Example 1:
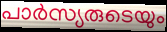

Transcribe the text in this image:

പാർസ്യരുടെയും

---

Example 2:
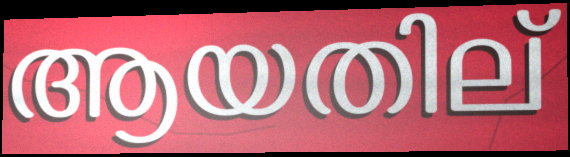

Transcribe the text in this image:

ആയതില്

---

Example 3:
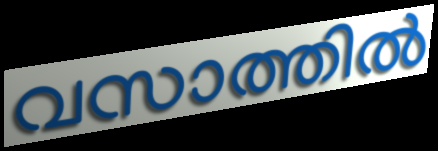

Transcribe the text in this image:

വസാത്തിൽ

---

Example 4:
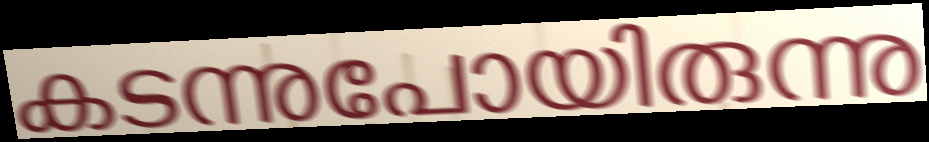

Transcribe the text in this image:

കടന്നുപോയിരുന്നു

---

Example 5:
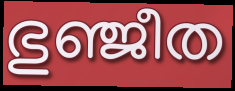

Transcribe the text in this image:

ഭുഞ്ജീത